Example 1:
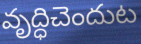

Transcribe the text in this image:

వృద్ధిచెందుట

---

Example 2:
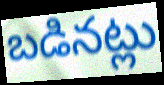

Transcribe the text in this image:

బడినట్లు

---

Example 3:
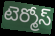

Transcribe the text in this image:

టెర్మోస్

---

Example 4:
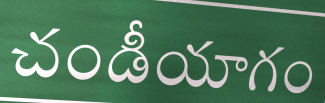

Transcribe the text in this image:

చండీయాగం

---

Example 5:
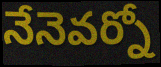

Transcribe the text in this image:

నేనెవర్నో